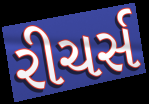
રીચર્સ